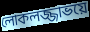
লোকলজ্জাভয়ে